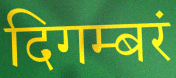
दिगम्बरं